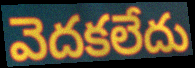
వెదకలేదు